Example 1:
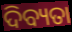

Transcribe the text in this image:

ଦିବ୍ୟତା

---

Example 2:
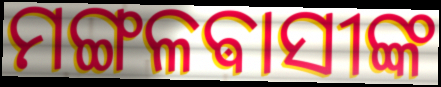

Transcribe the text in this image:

ମଙ୍ଗଳଵାସୀଙ୍କ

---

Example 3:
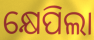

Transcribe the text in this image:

କ୍ଷେପିଲା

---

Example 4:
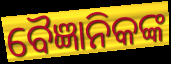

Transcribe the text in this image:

ବୈଜ୍ଞାନିକଙ୍କ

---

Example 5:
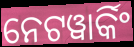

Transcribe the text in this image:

ନେଟୱାର୍କିଂ